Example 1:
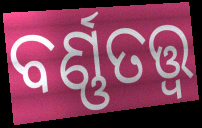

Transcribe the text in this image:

ବର୍ଣ୍ଣତତ୍ତ୍ଵ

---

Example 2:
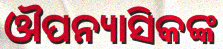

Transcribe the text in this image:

ଔପନ୍ୟାସିକଙ୍କ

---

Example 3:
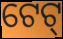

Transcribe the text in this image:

ଟେଟ୍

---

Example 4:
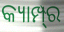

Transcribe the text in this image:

କ୍ୟାମ୍ପ୍‍ର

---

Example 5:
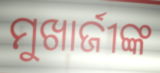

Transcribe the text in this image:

ମୁଖାର୍ଜୀଙ୍କ